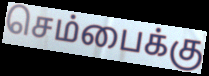
செம்பைக்கு